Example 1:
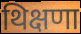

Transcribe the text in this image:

थिक्षणा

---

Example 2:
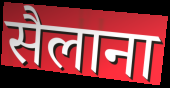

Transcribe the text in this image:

सैलाना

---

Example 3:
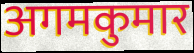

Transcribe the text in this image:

अगमकुमार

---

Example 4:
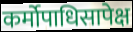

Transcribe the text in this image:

कर्मोपाधिसापेक्ष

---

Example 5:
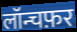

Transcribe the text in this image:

लॉन्चफ़र